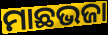
ମାଛଭଜା